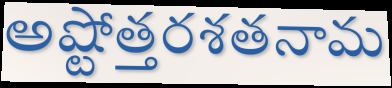
అష్టోత్తరశతనామ